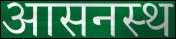
आसनस्थ